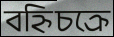
বহ্নিচক্রে